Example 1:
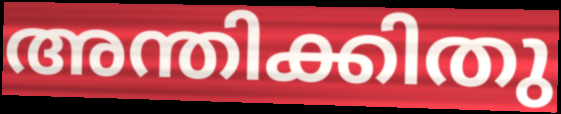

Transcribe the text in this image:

അന്തിക്കിതു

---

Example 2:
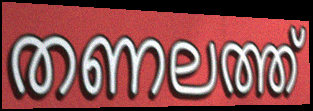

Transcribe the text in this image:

തണലത്ത്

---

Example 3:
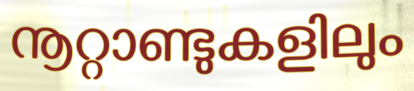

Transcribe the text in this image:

നൂറ്റാണ്ടുകളിലും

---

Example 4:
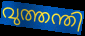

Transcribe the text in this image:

വുത്തന്തി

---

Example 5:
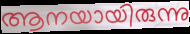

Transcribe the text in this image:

ആനയായിരുന്നു